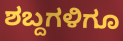
ಶಬ್ದಗಳಿಗೂ